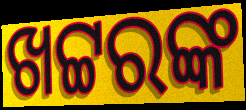
ଖଟ୍ଟରଙ୍କ